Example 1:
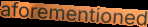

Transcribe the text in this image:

aforementioned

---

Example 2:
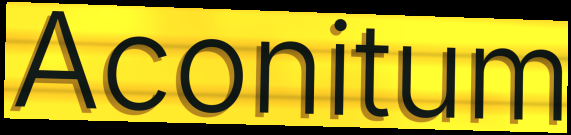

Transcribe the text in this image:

Aconitum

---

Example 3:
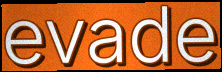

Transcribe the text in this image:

evade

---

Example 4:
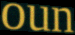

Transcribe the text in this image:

oun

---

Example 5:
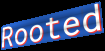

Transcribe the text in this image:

Rooted